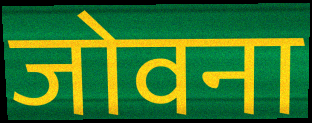
जोवना